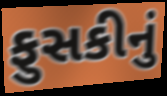
ફુસકીનું